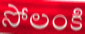
సోలంకి